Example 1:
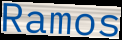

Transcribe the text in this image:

Ramos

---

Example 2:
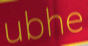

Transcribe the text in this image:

ubhe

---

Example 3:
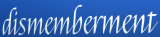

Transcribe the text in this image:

dismemberment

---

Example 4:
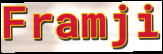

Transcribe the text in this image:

Framji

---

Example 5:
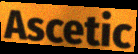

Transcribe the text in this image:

Ascetic